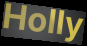
Holly